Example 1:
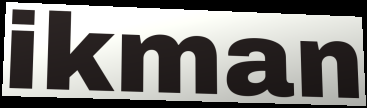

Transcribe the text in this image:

ikman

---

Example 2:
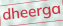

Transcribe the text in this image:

dheerga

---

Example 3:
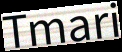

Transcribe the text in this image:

Tmari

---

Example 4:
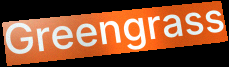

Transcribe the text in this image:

Greengrass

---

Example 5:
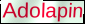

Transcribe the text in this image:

Adolapin